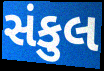
સંકુલ